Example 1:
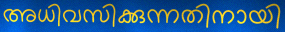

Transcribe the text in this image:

അധിവസിക്കുന്നതിനായി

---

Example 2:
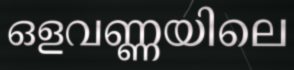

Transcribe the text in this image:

ഒളവണ്ണയിലെ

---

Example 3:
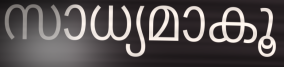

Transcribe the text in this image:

സാധ്യമാകൂ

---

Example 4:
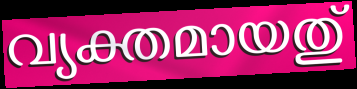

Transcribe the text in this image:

വ്യക്തമായതു്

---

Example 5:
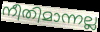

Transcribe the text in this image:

നീതിമാന്നല്ല